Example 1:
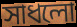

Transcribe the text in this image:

সাধলো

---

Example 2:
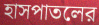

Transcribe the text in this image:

হাসপাতলের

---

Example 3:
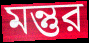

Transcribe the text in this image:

মন্তুর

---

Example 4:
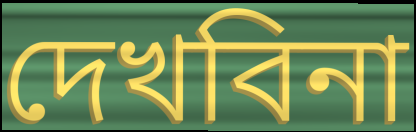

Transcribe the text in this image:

দেখবিনা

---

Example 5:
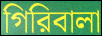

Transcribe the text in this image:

গিরিবালা